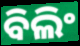
ବିଲିଂ